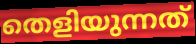
തെളിയുന്നത്